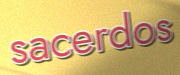
sacerdos